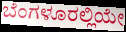
ಬೆಂಗಳೂರಲ್ಲಿಯೇ